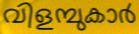
വിളമ്പുകാർ